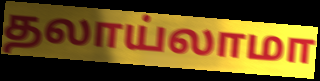
தலாய்லாமா